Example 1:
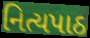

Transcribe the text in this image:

નિત્યપાઠ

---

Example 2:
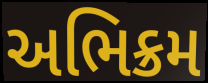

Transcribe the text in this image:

અભિક્રમ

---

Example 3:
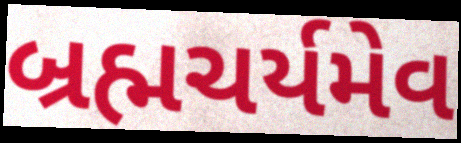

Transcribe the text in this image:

બ્રહ્મચર્યમેવ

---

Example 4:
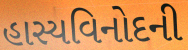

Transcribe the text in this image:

હાસ્યવિનોદની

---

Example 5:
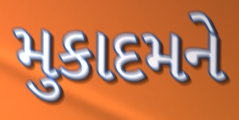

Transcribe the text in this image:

મુકાદમને